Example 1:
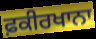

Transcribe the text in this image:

ਫ਼ਕੀਰਖਾਨਾ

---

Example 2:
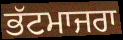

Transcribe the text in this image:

ਭੱਟਮਾਜਰਾ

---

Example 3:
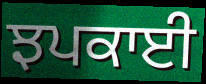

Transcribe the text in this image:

ਝਪਕਾਈ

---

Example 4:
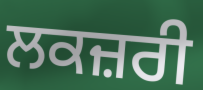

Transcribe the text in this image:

ਲਕਜ਼ਰੀ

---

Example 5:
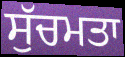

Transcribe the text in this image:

ਸੁੱਚਮਤਾ